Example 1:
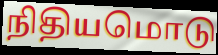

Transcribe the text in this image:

நிதியமொடு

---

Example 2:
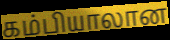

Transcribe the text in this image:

கம்பியாலான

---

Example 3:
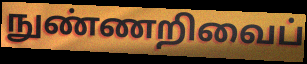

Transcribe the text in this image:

நுண்ணறிவைப்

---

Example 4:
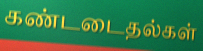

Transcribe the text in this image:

கண்டடைதல்கள்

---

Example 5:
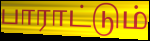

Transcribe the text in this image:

பாராட்டும்